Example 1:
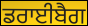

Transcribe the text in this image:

ਡਰਾਈਬੈਗ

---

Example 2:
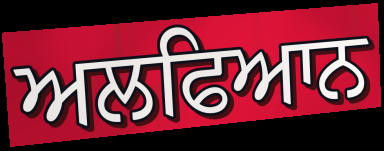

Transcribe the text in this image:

ਅਲਫਿਆਨ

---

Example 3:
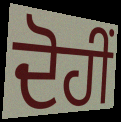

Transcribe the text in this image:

ਦੋਹੀਂ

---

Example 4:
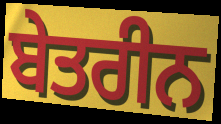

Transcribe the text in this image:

ਬੇਤਰੀਨ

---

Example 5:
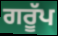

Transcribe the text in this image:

ਗਰੂੱਪ